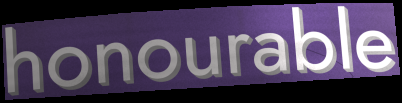
honourable